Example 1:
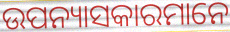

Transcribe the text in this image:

ଉପନ୍ୟାସକାରମାନେ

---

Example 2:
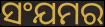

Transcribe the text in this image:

ସଂଯମର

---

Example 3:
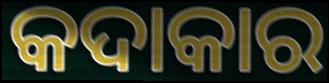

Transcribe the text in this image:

କଦାକାର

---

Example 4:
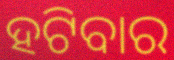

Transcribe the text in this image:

ହଟିବାର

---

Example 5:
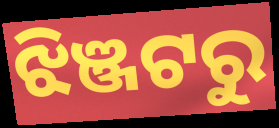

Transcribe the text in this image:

ଝିଞ୍ଜଟରୁ